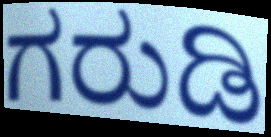
ಗರುಡಿ